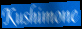
Kushimone